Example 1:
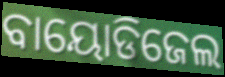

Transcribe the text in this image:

ବାୟୋଡିଜେଲ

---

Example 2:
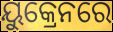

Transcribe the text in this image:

ୟୁକ୍ରେନରେ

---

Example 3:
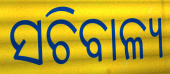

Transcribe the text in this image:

ସଚିବାଳ୍ୟ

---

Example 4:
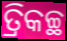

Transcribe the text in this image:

ତ୍ରିକଚ୍ଛ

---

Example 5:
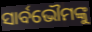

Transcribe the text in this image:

ସାର୍ବଭୌମଙ୍କୁ